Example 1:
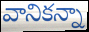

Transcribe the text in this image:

వానికన్నా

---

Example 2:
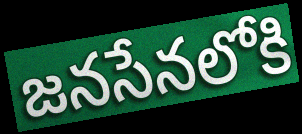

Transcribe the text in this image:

జనసేనలోకి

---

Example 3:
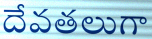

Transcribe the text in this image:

దేవతలుగా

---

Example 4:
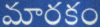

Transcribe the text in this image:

మారకం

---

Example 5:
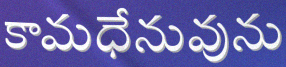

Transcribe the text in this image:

కామధేనువును